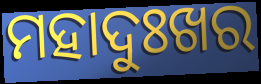
ମହାଦୁଃଖର